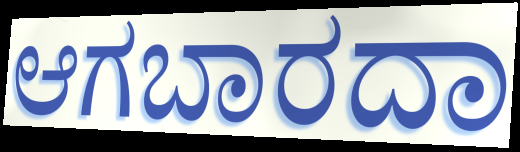
ಆಗಬಾರದಾ